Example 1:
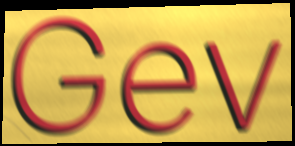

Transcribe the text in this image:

Gev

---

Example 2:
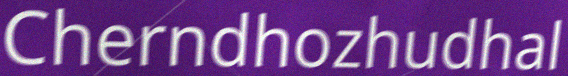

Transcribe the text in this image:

Cherndhozhudhal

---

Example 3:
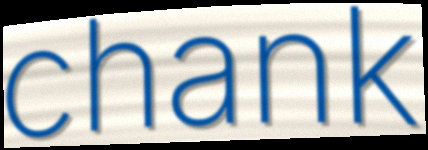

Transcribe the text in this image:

chank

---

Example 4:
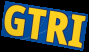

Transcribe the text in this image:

GTRI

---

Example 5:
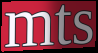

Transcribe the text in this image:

mts